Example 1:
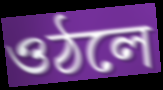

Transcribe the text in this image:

ওঠলে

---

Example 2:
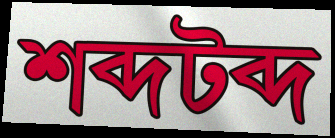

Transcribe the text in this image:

শব্দটব্দ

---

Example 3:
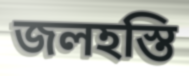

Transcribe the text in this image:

জলহস্তি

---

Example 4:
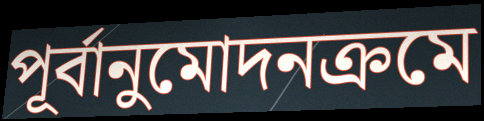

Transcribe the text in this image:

পূর্বানুমোদনক্রমে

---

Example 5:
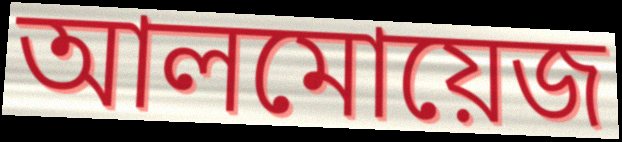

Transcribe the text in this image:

আলমোয়েজ